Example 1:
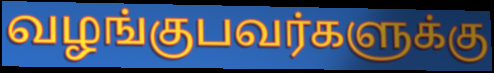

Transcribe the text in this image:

வழங்குபவர்களுக்கு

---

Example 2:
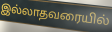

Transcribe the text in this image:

இல்லாதவரையில்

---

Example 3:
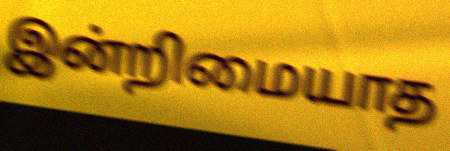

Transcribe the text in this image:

இன்றிமையாத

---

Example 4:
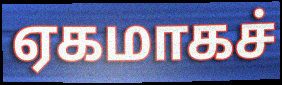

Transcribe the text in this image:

ஏகமாகச்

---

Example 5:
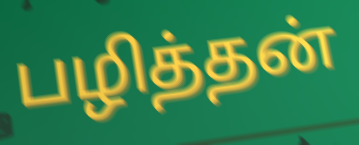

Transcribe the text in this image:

பழித்தன்